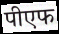
पीएफ